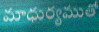
మాధుర్యముతో